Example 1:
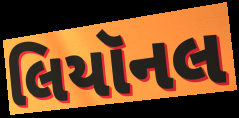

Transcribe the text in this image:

લિયૉનલ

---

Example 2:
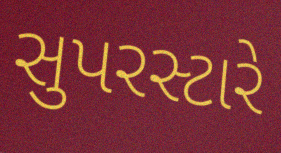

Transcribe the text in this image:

સુપરસ્ટારે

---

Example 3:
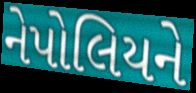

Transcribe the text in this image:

નેપોલિયને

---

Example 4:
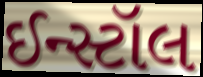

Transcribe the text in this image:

ઈન્સ્ટૉલ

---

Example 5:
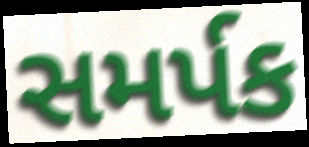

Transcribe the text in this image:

સમર્પક